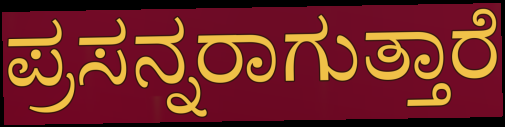
ಪ್ರಸನ್ನರಾಗುತ್ತಾರೆ